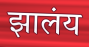
झालंय